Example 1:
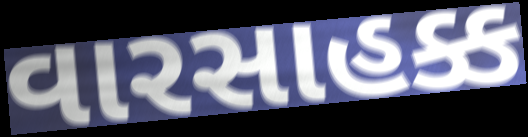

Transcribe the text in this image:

વારસાહક્ક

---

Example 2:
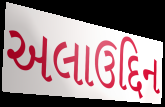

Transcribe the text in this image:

અલાઉદ્દિન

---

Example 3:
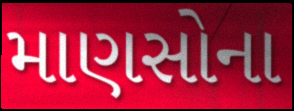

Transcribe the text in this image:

માણસોના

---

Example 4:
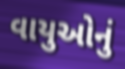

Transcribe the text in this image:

વાયુઓનું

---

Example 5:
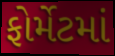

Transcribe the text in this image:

ફોર્મેટમાં